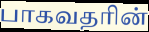
பாகவதரின்